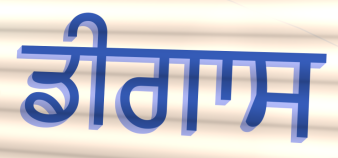
ਡੀਗਾਸ